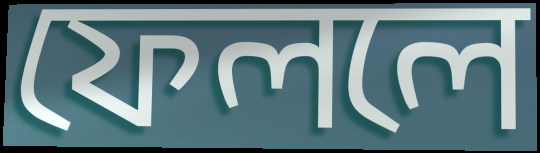
ফেললে